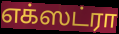
எக்ஸட்ரா